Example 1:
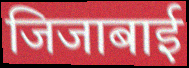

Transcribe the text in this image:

जिजाबाई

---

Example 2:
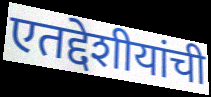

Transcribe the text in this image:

एतद्देशीयांची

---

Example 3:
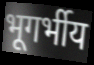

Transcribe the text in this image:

भूगर्भीय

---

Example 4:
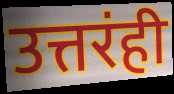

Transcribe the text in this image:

उत्तरंही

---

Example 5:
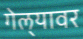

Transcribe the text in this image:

गेल्यावर